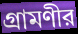
গ্রামণীর